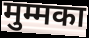
मुम्मका